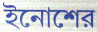
ইনোশের